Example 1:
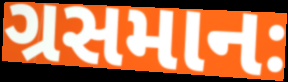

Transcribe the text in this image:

ગ્રસમાનઃ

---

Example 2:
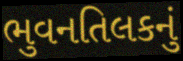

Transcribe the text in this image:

ભુવનતિલકનું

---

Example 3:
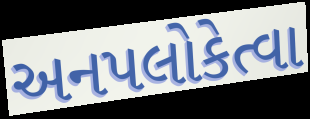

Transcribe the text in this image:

અનપલોકેત્વા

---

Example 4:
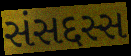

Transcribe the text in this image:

સંસદ્દસ્સ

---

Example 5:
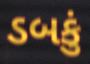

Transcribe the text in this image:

ડબકું